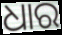
ଧାର